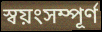
স্বয়ংসম্পূর্ণ